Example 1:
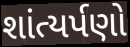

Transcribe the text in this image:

શાંત્યર્પણો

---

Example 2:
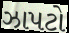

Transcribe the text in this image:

ઝાપટો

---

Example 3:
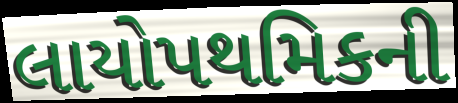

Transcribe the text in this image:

લાયોપથમિકની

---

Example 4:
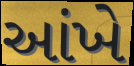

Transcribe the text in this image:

આંખે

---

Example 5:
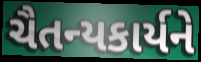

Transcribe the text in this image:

ચૈતન્યકાર્યને